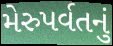
મેરુપર્વતનું